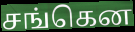
சங்கென